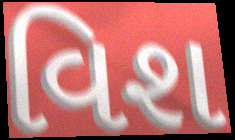
વિશ